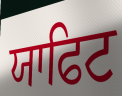
ਯਾਫਿਟ